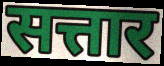
सत्तार